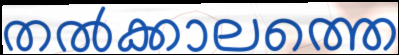
തൽക്കാലത്തെ